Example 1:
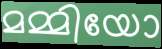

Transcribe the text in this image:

മമ്മിയോ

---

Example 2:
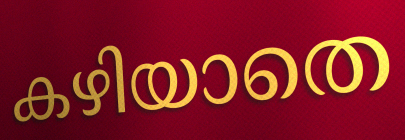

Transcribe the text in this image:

കഴിയാതെ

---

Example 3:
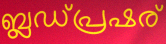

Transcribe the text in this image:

ബ്ലഡ്പ്രഷര്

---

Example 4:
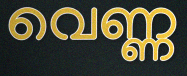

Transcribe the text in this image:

വെണ്ണ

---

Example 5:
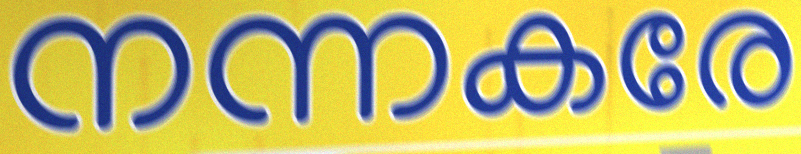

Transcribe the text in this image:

നന്നകരേ